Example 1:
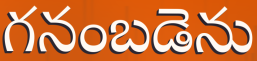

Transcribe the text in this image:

గనంబడెను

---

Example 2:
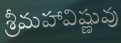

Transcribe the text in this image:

శ్రీమహావిష్ణువు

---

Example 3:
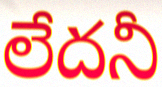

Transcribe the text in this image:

లేదనీ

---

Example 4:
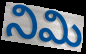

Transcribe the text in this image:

నిమి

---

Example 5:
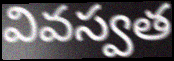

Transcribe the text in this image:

వివస్వత